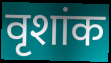
वृशांक